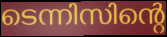
ടെന്നിസിന്റെ